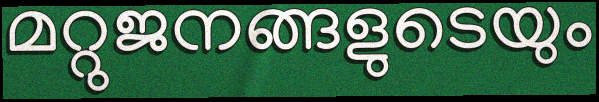
മറ്റുജനങ്ങളുടെയും